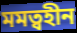
মমত্বহীন